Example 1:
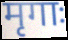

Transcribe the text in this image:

मृगाः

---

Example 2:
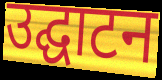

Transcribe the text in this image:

उद्घाटन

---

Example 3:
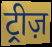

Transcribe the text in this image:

ट्रीज़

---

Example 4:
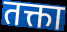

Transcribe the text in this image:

तक्ता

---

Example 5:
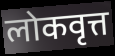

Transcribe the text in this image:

लोकवृत्त